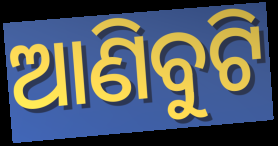
ଆଣିବୁଟି